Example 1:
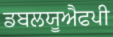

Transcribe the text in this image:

ਡਬਲਯੂਐਫਪੀ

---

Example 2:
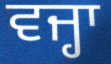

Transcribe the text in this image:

ਵਜ੍ਹਾ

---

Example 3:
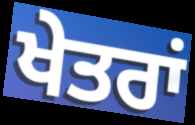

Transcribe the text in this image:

ਖੇਤਰਾਂ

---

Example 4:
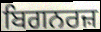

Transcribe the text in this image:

ਬਿਗਨਰਜ਼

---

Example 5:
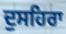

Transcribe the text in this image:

ਦੁਸਹਿਰਾ